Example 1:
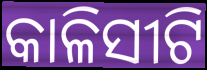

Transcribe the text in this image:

କାଳିସୀଟି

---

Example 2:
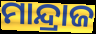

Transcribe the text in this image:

ମାନ୍ଦ୍ରାଜ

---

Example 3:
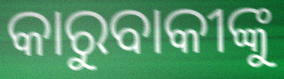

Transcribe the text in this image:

କାରୁବାକୀଙ୍କୁ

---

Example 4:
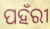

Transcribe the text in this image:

ପହଁରୀ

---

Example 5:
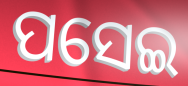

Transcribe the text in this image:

ପସେଇ